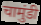
चामुंडी